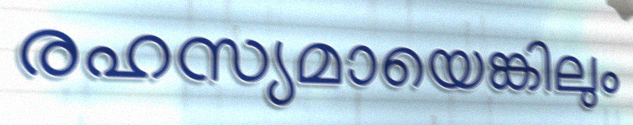
രഹസ്യമായെങ്കിലും